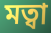
মত্বা